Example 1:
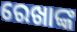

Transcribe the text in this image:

ରେଖାଙ୍କ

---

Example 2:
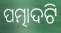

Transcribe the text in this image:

ପତ୍ମାଦଟି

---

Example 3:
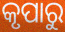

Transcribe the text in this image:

କୃପାରୁ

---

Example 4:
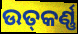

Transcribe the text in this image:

ଉତ୍‍କର୍ଣ୍ଣ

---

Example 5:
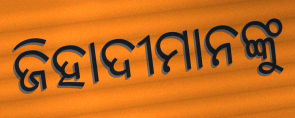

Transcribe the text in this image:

ଜିହାଦୀମାନଙ୍କୁ